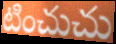
టించుచు